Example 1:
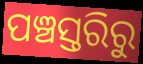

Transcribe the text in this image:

ପଞ୍ଚସ୍ତରିରୁ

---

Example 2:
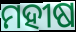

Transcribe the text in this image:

ମହୀଷ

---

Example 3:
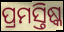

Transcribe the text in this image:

ପ୍ରମସ୍ତିଷ୍କ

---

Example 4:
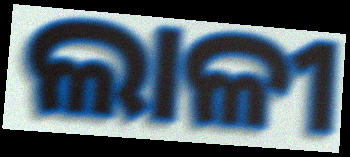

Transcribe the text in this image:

ଲାଳୀ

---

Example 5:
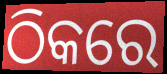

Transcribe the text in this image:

ଠିକରେ